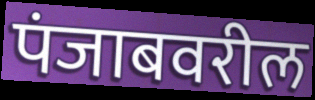
पंजाबवरील